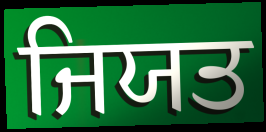
ਜਿਯਤ